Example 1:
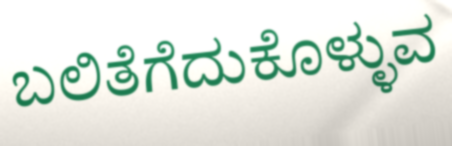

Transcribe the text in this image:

ಬಲಿತೆಗೆದುಕೊಳ್ಳುವ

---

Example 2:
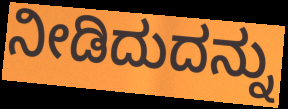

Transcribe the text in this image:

ನೀಡಿದುದನ್ನು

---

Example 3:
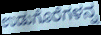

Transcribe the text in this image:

ಉಡುಗೊರೆಗಳನ್ನ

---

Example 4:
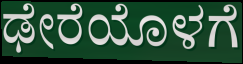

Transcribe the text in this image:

ಢೇರೆಯೊಳಗೆ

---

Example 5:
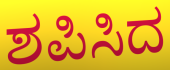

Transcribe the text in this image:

ಶಪಿಸಿದ